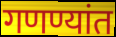
गणण्यांत